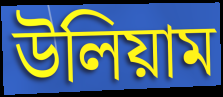
উলিয়াম